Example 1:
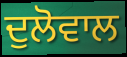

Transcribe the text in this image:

ਦੁਲੋਵਾਲ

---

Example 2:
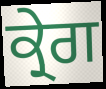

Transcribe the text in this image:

ਕ੍ਰੇਗ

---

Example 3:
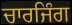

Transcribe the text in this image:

ਚਾਰਜਿੰਗ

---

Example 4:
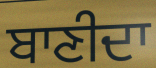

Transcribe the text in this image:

ਬਾਣੀਦਾ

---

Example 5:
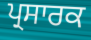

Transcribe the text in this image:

ਪ੍ਰਸਾਰਕ